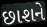
છાશને